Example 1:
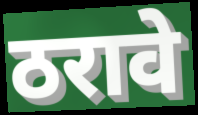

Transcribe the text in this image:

ठरावे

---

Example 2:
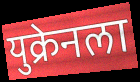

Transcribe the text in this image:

युक्रेनला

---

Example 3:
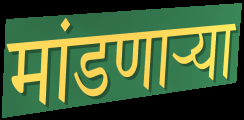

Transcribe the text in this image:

मांडणाऱ्या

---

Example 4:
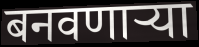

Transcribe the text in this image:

बनवणाऱ्या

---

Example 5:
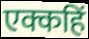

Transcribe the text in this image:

एक्कहिं